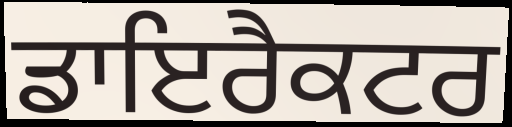
ਡਾਇਰੈਕਟਰ